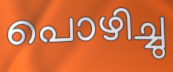
പൊഴിച്ചു